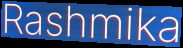
Rashmika